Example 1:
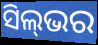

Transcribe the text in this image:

ସିଲ୍‌ଭର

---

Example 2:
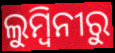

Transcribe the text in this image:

ଲୁମ୍ବିନୀରୁ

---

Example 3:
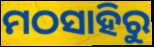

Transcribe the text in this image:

ମଠସାହିରୁ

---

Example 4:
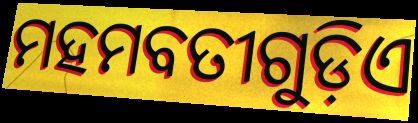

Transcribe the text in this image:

ମହମବତୀଗୁଡ଼ିଏ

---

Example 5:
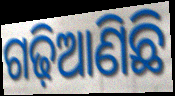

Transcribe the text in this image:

ଗଢ଼ିଆଣିଛି